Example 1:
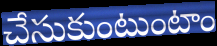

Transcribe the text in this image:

చేసుకుంటుంటాం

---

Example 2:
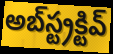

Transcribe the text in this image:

అబ్‌స్ట్రక్టివ్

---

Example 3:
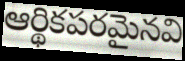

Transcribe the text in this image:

ఆర్థికపరమైనవి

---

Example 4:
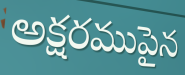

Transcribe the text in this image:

అక్షరముపైన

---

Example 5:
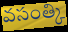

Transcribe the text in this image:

వసంత్కి